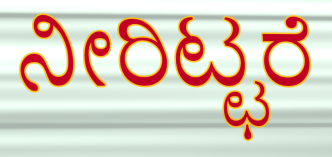
ನೀರಿಟ್ಟರೆ